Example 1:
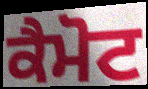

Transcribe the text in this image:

ਕੈਮੋਟ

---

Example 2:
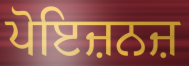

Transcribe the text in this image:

ਪੋਇਜ਼ਨਜ਼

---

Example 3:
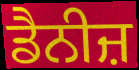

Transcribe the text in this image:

ਡੈਨੀਜ਼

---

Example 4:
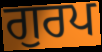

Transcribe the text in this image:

ਗੁਰਪ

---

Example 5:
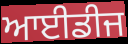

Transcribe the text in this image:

ਆਈਡੀਜ